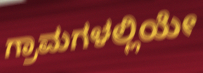
ಗ್ರಾಮಗಳಲ್ಲಿಯೇ